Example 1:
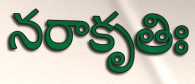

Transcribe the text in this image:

నరాకృతిః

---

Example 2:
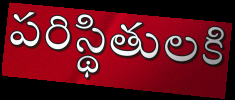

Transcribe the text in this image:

పరిస్థితులకి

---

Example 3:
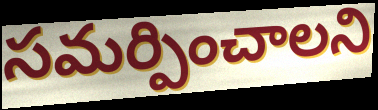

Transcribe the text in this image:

సమర్పించాలని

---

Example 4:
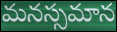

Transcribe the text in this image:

మనస్సమాన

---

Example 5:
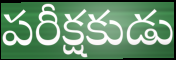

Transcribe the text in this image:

పరీక్షకుడు